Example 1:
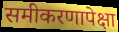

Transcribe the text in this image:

समीकरणापेक्षा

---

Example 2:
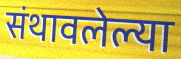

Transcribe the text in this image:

संथावलेल्या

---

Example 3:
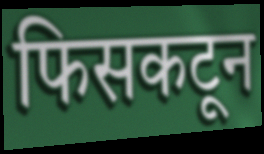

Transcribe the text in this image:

फिसकटून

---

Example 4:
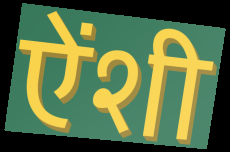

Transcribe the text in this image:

ऐंशी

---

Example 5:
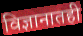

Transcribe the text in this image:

विज्ञानातही